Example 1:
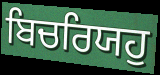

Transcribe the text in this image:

ਬਿਚਰਿਯਹੁ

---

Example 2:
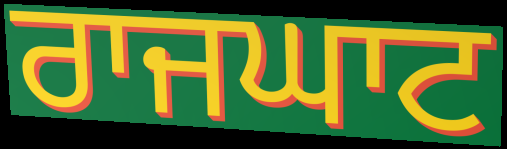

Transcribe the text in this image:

ਰਾਜਘਾਟ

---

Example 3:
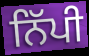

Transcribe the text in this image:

ਨਿੱਪੀ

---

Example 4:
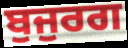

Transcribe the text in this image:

ਬੁਜੁਰਗ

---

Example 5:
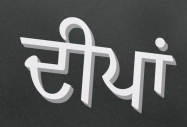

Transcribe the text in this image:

ਦੀਪਾਂ